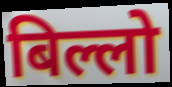
बिल्लो